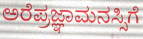
ಅರೆಪ್ರಜ್ಞಾಮನಸ್ಸಿಗೆ